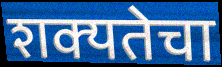
शक्यतेचा